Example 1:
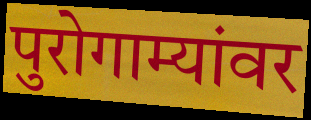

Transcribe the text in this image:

पुरोगाम्यांवर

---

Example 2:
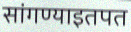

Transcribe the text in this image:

सांगण्याइतपत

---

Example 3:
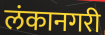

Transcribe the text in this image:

लंकानगरी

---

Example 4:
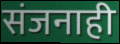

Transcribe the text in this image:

संजनाही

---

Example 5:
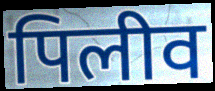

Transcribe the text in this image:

पिलीव